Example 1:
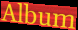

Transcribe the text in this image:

Album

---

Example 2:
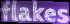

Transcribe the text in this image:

flakes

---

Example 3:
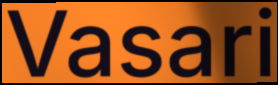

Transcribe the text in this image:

Vasari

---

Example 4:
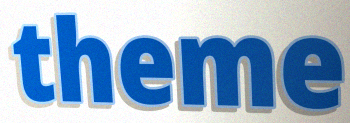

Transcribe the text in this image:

theme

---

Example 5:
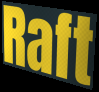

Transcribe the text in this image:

Raft